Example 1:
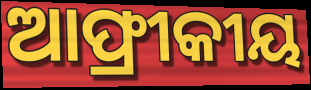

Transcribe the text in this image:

ଆଫ୍ରୀକୀୟ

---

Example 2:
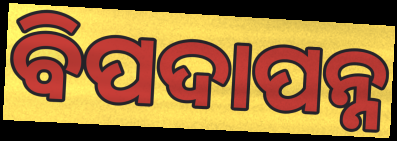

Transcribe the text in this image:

ବିପଦାପନ୍ନ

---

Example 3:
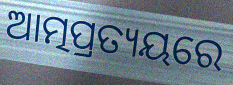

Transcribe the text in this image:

ଆତ୍ମପ୍ରତ୍ୟୟରେ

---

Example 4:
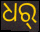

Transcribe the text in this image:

ଧର୍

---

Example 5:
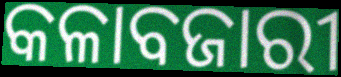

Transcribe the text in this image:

କଳାବଜାରୀ